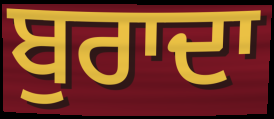
ਬੁਰਾਦਾ